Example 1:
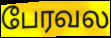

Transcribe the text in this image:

பேரவல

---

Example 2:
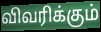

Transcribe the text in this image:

விவரிக்கும்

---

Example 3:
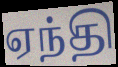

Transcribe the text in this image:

ஏந்தி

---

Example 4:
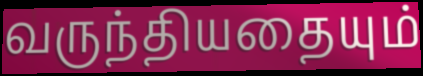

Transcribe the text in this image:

வருந்தியதையும்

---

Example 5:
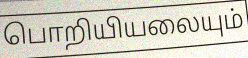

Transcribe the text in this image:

பொறியியலையும்